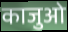
काजुओ